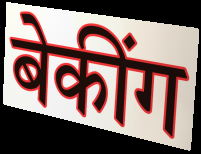
बेकींग